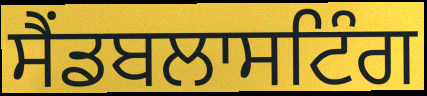
ਸੈਂਡਬਲਾਸਟਿੰਗ